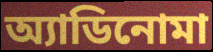
অ্যাডিনোমা